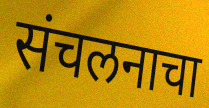
संचलनाचा